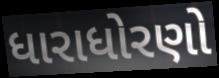
ધારાધોરણો